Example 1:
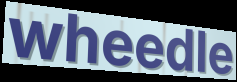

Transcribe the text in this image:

wheedle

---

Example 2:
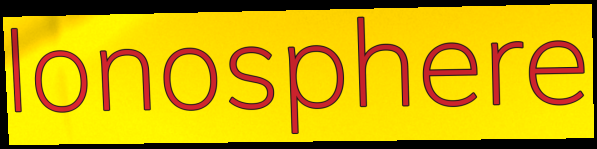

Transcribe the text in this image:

Ionosphere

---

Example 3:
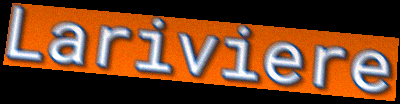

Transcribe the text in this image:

Lariviere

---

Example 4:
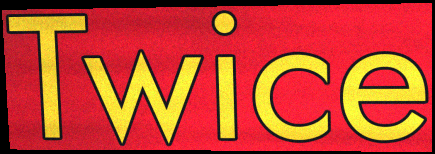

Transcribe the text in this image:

Twice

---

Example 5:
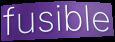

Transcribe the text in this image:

fusible